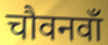
चौवनवाँ